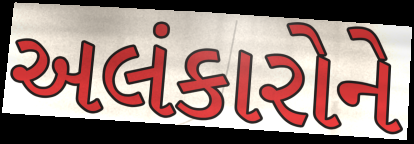
અલંકારોને